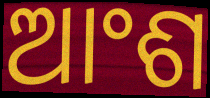
ଆଂଶ